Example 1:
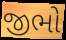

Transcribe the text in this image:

જીભો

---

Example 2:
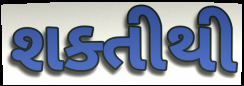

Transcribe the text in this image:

શક્તીથી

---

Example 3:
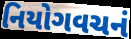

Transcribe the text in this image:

નિયોગવચનં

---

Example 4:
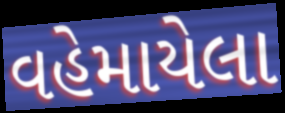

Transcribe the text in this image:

વહેમાયેલા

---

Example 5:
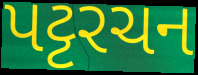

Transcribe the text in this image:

પટ્ટરચન